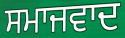
ਸਮਾਜਵਾਦ